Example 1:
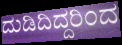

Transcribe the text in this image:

ದುಡಿದಿದ್ದರಿಂದ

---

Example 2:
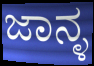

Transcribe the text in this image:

ಜಾನ್ಳ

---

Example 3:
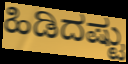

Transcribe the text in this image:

ಹಿಡಿದಷ್ಟು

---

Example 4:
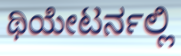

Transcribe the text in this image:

ಥಿಯೇಟರ್ನಲ್ಲಿ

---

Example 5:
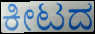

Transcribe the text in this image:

ಕೀಟದ